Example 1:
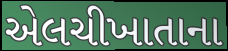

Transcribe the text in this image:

એલચીખાતાના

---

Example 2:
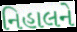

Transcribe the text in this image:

નિહાલને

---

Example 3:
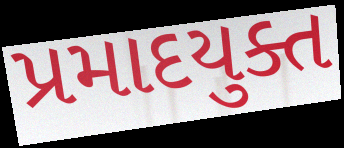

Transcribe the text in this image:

પ્રમાદયુક્ત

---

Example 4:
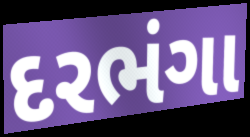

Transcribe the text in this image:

દરભંગા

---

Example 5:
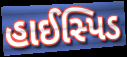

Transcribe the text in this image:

હાઈસ્પિડ